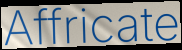
Affricate